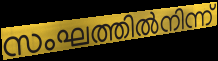
സംഘത്തിൽനിന്ന്